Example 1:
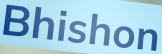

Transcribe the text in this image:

Bhishon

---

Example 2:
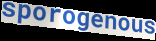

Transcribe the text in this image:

sporogenous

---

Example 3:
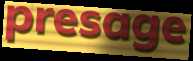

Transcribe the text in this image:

presage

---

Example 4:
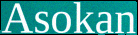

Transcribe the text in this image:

Asokan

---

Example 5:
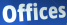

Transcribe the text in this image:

Offices